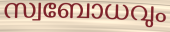
സ്വബോധവും